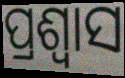
ପ୍ରଶ୍ୱାସ